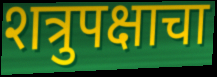
शत्रुपक्षाचा